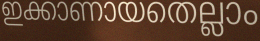
ഇക്കാണായതെല്ലാം